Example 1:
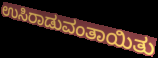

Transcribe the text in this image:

ಉಸಿರಾಡುವಂತಾಯಿತು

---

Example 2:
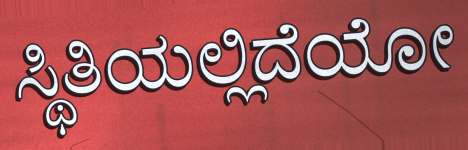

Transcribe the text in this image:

ಸ್ಥಿತಿಯಲ್ಲಿದೆಯೋ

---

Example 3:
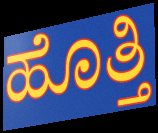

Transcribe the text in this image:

ಹೊತ್ತಿ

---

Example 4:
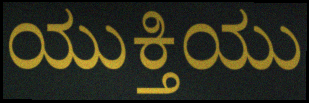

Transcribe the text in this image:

ಯುಕ್ತಿಯು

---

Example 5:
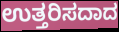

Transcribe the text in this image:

ಉತ್ತರಿಸದಾದ